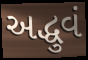
અદ્ધુવં